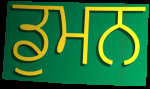
ਡੁਮਨ